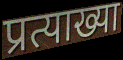
प्रत्याख्या